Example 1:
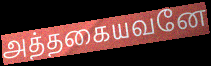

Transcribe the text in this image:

அத்தகையவனே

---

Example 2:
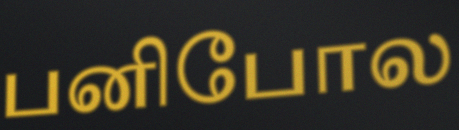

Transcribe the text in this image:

பனிபோல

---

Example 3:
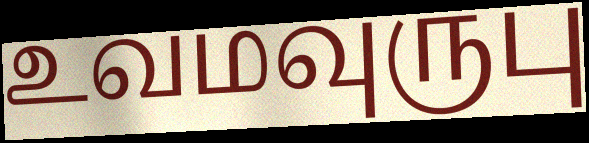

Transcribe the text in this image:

உவமவுருபு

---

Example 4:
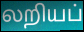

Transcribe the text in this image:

லறியப்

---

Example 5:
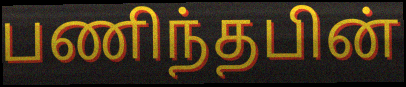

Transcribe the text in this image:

பணிந்தபின்